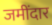
जमींदार